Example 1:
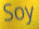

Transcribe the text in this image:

Soy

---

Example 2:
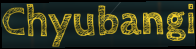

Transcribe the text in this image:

Chyubangi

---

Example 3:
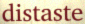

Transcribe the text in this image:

distaste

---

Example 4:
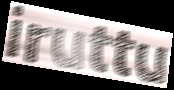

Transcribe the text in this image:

iruttu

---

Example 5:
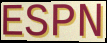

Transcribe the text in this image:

ESPN